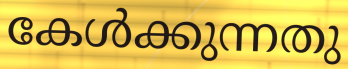
കേൾക്കുന്നതു